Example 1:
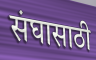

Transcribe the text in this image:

संघासाठी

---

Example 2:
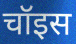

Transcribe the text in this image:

चॉइस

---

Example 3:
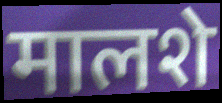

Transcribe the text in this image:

मालशे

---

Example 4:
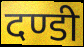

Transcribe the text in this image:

दण्डी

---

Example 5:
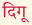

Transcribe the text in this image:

दिगू